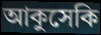
আকুসেকি